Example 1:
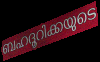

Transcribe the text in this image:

ബഹദൂറിക്കയുടെ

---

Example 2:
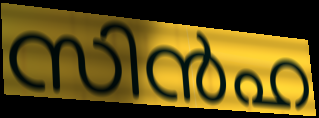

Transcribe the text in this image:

സിൻഹ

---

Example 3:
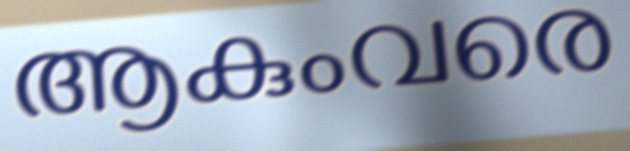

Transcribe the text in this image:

ആകുംവരെ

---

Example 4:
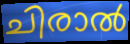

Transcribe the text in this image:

ചിരാൽ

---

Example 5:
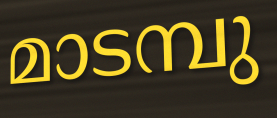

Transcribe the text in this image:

മാടമ്പു